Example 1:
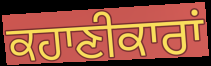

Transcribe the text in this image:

ਕਹਾਣੀਕਾਰਾਂ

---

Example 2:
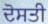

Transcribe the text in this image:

ਦੋਸਤੀ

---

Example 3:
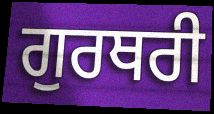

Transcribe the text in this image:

ਗੁਰਥਰੀ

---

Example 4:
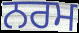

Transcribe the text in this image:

ਨਰਮ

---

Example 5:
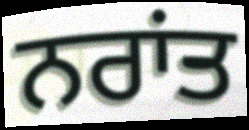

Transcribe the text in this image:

ਨਰਾਂਤ